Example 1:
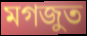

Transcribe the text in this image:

মগজুত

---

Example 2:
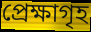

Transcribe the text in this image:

প্ৰেক্ষাগৃহ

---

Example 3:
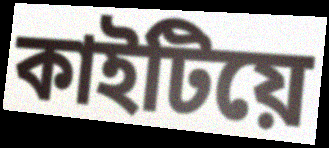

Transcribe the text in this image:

কাইটিয়ে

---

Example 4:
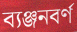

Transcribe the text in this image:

ব্যঞ্জনবৰ্ণ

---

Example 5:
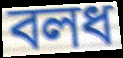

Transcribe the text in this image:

বলধ